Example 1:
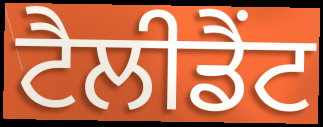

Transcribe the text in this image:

ਟੈਲੀਡੈਂਟ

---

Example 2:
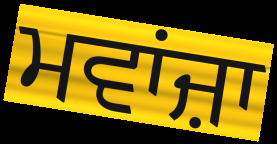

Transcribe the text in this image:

ਮਵਾਂਜ਼ਾ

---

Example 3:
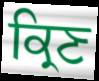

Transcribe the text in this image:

ਕ੍ਰਿਣ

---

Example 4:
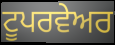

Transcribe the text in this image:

ਟੂਪਰਵੇਅਰ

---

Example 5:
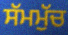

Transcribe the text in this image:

ਸੱਮਮੁੱਚ